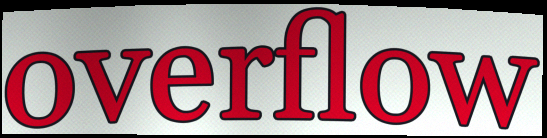
overflow